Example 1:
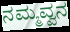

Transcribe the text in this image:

ನಮ್ಮವ್ವನ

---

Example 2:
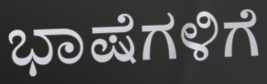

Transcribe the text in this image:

ಭಾಷೆಗಳಿಗೆ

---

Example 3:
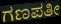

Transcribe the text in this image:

ಗಣಪತೀ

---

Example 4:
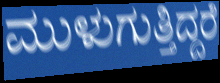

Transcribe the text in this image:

ಮುಳುಗುತ್ತಿದ್ದರೆ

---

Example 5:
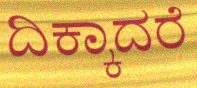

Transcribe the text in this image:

ದಿಕ್ಕಾದರೆ